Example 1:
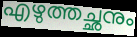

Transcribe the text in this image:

എഴുത്തച്ഛനും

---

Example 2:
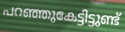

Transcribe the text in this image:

പറഞ്ഞുകേട്ടിട്ടുണ്ട്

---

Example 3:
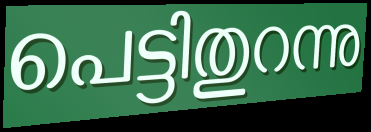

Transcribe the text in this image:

പെട്ടിതുറന്നു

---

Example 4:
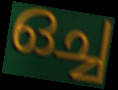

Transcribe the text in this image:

ഒച്ച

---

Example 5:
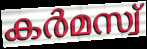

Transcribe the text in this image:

കർമസ്വ്